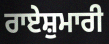
ਰਾਏਸ਼ੁਮਾਰੀ